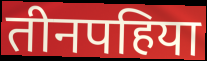
तीनपहिया